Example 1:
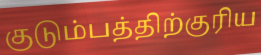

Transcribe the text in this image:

குடும்பத்திற்குரிய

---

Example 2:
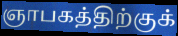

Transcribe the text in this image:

ஞாபகத்திற்குக்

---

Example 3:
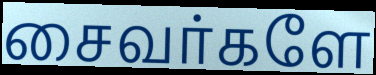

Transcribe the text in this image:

சைவர்களே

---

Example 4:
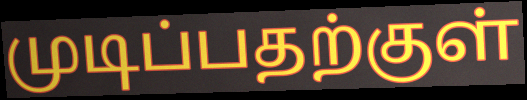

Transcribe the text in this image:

முடிப்பதற்குள்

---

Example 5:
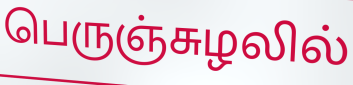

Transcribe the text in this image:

பெருஞ்சுழலில்